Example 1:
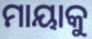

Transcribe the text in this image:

ମାୟାକୁ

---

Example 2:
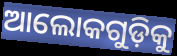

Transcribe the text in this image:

ଆଲୋକଗୁଡ଼ିକୁ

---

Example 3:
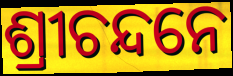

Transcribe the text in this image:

ଶ୍ରୀଚନ୍ଦନେ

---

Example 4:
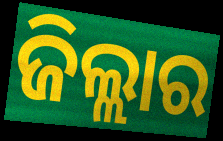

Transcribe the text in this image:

ଜିଲ୍ଲାର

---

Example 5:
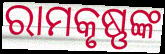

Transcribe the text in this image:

ରାମକୃଷ୍ଣଙ୍କ